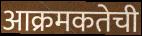
आक्रमकतेची